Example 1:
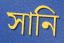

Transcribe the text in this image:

সানি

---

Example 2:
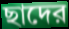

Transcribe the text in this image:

ছাদের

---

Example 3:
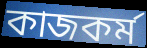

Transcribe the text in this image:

কাজকর্ম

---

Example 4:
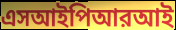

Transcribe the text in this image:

এসআইপিআরআই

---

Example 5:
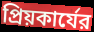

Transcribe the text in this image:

প্রিয়কার্যের